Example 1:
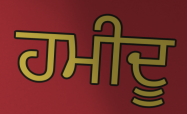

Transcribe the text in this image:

ਹਮੀਦੂ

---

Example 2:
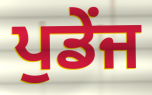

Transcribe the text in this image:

ਪੁਡੇਂਜ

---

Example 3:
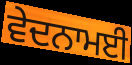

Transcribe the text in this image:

ਵੇਦਨਾਮਈ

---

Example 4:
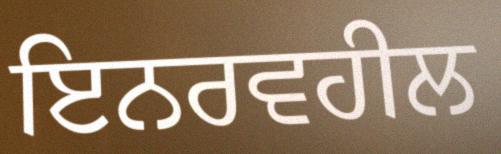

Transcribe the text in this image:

ਇਨਰਵਹੀਲ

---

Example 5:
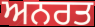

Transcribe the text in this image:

ਅਨਰਤ